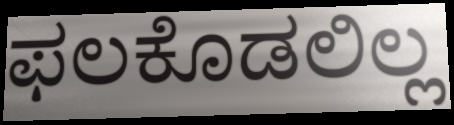
ಫಲಕೊಡಲಿಲ್ಲ